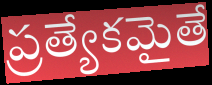
ప్రత్యేకమైతే